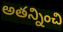
అతన్నించి